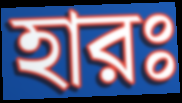
হারঃ